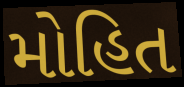
મોહિત